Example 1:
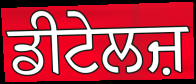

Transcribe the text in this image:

ਡੀਟੇਲਜ਼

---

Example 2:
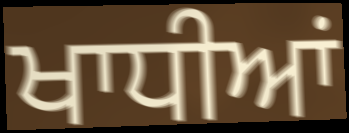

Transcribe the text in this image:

ਖਾਧੀਆਂ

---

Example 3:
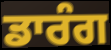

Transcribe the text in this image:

ਡਾਰੰਗ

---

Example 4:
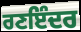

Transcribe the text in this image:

ਰਣਇੰਦਰ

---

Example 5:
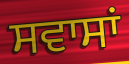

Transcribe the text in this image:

ਸਵਾਸਾਂ